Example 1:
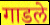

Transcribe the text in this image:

गाडले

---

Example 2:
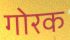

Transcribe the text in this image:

गोरक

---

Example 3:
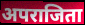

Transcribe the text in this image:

अपराजिता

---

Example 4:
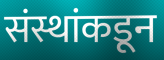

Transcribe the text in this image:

संस्थांकडून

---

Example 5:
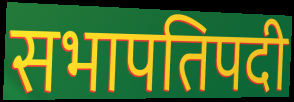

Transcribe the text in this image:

सभापतिपदी